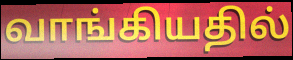
வாங்கியதில்